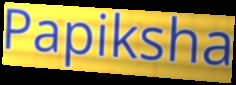
Papiksha